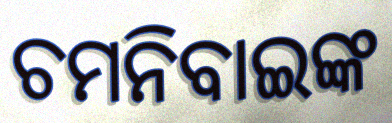
ଚମନିବାଇଙ୍କ